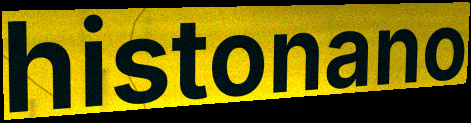
histonano